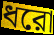
ধরো